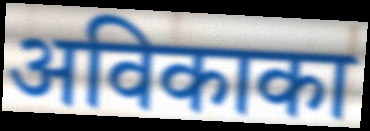
अविकाका